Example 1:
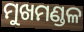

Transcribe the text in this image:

ମୁଖମଣ୍ଡଳ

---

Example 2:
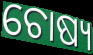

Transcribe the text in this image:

ଚୋଷ୍ୟ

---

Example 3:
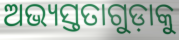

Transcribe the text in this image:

ଅଭ୍ୟସ୍ତତାଗୁଡ଼ାକୁ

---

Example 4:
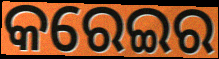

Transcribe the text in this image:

କରେଇର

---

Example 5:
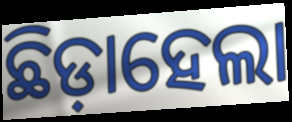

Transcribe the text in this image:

ଛିଡ଼ାହେଲା